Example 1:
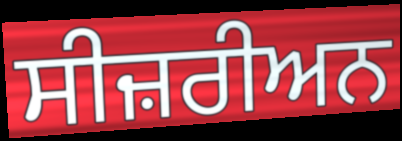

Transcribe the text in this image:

ਸੀਜ਼ਰੀਅਨ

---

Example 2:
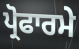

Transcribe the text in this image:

ਪ੍ਰੋਫਾਰਮੇ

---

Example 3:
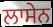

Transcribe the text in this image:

ਲਾਸੇਨ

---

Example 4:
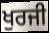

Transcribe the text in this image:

ਖੁਰਜੀ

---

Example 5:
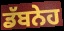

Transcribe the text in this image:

ਡੱਬਨੇਹ